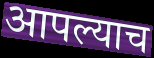
आपल्याच